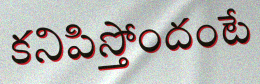
కనిపిస్తోందంటే